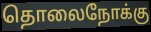
தொலைநோக்கு